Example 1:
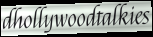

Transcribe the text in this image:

dhollywoodtalkies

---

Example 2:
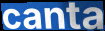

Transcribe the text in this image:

canta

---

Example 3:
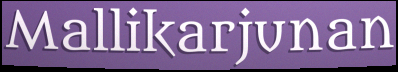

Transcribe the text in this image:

Mallikarjunan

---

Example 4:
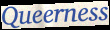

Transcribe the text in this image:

Queerness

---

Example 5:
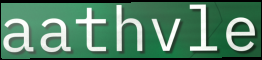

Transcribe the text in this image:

aathvle